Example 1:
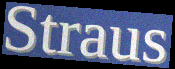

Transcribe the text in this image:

Straus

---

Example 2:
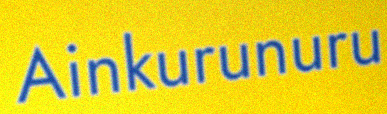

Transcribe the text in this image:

Ainkurunuru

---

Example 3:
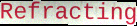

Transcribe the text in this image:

Refracting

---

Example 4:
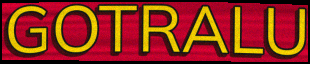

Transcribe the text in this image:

GOTRALU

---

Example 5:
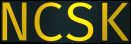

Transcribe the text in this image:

NCSK